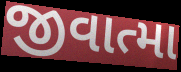
જીવાત્મા